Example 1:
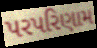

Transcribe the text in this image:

પરપરિણામ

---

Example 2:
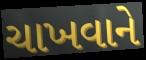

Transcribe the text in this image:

ચાખવાને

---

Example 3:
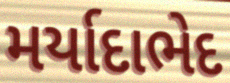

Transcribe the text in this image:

મર્યાદાભેદ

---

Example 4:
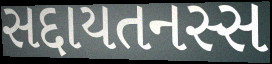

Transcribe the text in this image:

સદ્દાયતનસ્સ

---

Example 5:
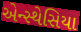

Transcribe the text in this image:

એન્સ્થેસિયા